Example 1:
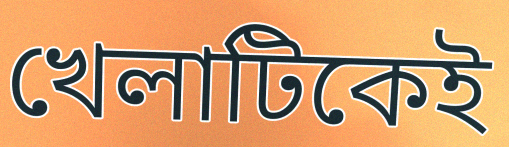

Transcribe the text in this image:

খেলাটিকেই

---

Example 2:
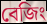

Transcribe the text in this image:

বেজিং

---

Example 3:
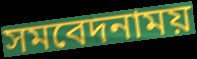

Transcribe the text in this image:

সমবেদনাময়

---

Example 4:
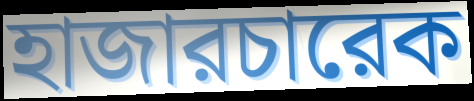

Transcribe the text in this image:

হাজারচারেক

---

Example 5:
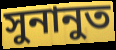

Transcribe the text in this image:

সুনানুত